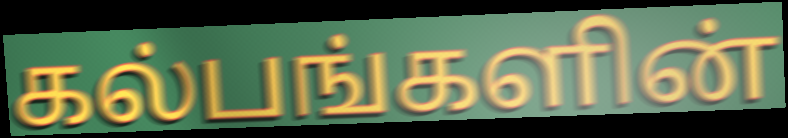
கல்பங்களின்